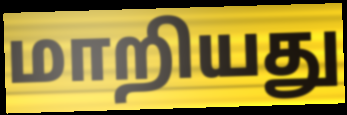
மாறியது